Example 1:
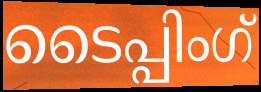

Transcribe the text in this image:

ടൈപ്പിംഗ്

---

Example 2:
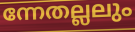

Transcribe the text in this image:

ന്നേതല്ലലും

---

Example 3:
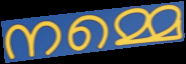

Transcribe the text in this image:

നമ്മെ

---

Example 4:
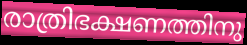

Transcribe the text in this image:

രാത്രിഭക്ഷണത്തിനു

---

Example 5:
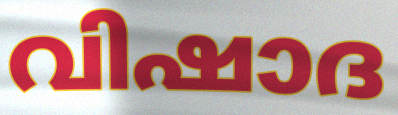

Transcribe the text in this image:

വിഷാദ